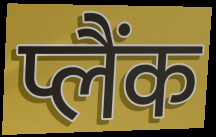
प्लैंक